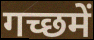
गच्छमें